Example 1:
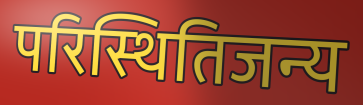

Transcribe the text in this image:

परिस्थितिजन्य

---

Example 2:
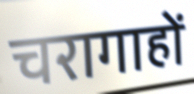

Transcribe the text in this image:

चरागाहों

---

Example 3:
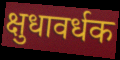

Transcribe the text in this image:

क्षुधावर्धक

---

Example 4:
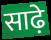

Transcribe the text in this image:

साढ़े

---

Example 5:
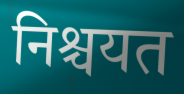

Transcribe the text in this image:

निश्चयत